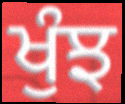
ਖੁੰਝ